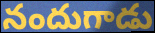
నందుగాడు